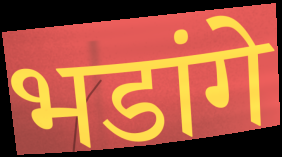
भडांगे